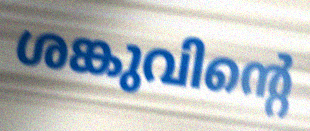
ശങ്കുവിന്റെ